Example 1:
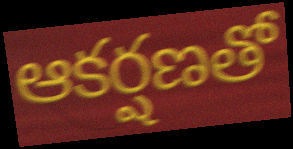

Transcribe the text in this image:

ఆకర్షణతో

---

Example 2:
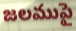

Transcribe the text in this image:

జలముపై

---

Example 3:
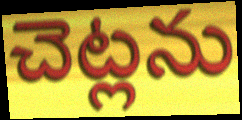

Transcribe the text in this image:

చెట్లను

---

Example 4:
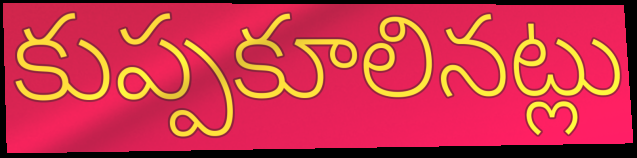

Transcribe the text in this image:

కుప్పకూలినట్లు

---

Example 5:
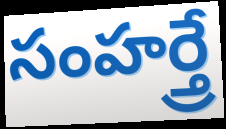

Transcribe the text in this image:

సంహర్త్రే